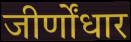
जीर्णोंधार